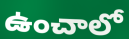
ఉంచాలో